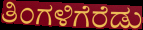
ತಿಂಗಳಿಗೆರೆಡು